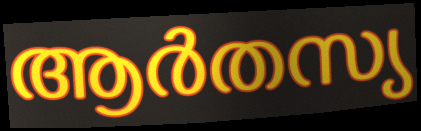
ആർതസ്യ